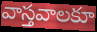
వాస్తవాలకూ